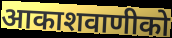
आकाशवाणीको